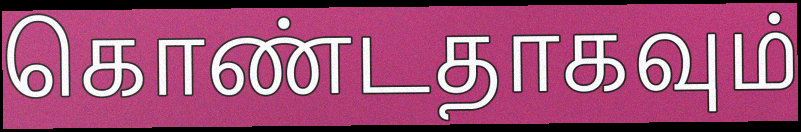
கொண்டதாகவும்